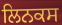
ਲਿਨਕਸ